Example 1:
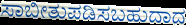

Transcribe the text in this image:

ಸಾಬೀತುಪಡಿಸಬಹುದಾದ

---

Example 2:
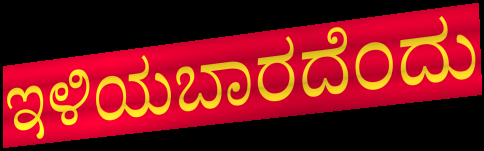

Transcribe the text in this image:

ಇಳಿಯಬಾರದೆಂದು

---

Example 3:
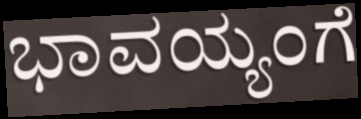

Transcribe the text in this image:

ಭಾವಯ್ಯಂಗೆ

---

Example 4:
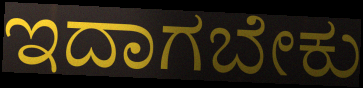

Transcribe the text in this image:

ಇದಾಗಬೇಕು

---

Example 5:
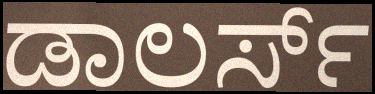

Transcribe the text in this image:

ಡಾಲರ್ಸ್